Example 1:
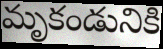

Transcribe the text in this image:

మృకండునికి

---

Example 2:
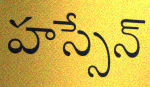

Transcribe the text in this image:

హస్సేన్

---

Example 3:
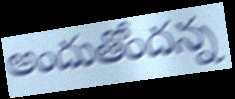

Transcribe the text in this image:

అందుతోందన్న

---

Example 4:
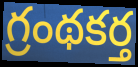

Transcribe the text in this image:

గ్రంథకర్త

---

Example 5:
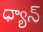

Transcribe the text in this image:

ధ్యాన్